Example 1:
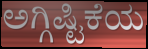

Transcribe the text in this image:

ಅಗ್ಗಿಷ್ಟಿಕೆಯ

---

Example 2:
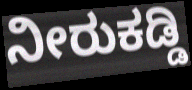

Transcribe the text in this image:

ನೀರುಕಡ್ಡಿ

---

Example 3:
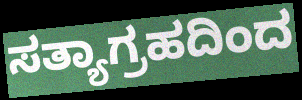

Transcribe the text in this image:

ಸತ್ಯಾಗ್ರಹದಿಂದ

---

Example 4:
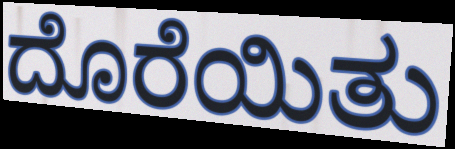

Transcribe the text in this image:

ದೊರೆಯಿತು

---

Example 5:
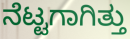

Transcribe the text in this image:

ನೆಟ್ಟಗಾಗಿತ್ತು